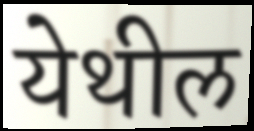
येथील